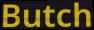
Butch